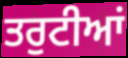
ਤਰੁਟੀਆਂ